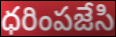
ధరింపజేసి